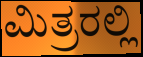
ಮಿತ್ರರಲ್ಲಿ